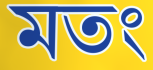
মতং